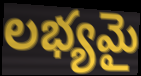
లభ్యమై